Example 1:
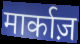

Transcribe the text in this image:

मार्काज़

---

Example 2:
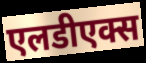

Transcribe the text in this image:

एलडीएक्स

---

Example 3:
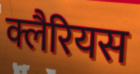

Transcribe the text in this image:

क्लैरियस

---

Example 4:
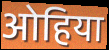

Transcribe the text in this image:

ओहिया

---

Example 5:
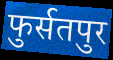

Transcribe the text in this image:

फुर्सतपुर